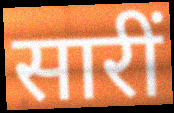
सारीं